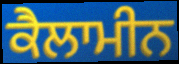
ਕੈਲਾਮੀਨ